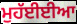
ਮੁਹੱਈਈਆ